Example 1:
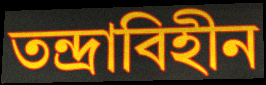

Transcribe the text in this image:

তন্দ্রাবিহীন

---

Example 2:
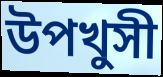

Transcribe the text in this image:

উপখুসী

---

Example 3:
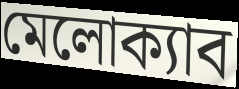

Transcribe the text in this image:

মেলোক্যাব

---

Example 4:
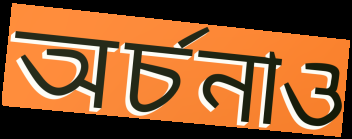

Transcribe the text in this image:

অর্চনাও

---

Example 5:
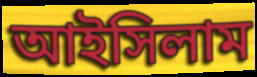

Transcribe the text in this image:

আইসিলাম